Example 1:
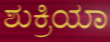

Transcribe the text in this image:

ಶುಕ್ರಿಯಾ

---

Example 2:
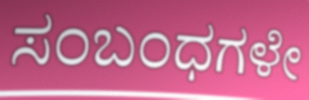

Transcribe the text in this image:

ಸಂಬಂಧಗಳೇ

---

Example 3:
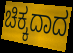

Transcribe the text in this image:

ಚಿಕ್ಕದಾದ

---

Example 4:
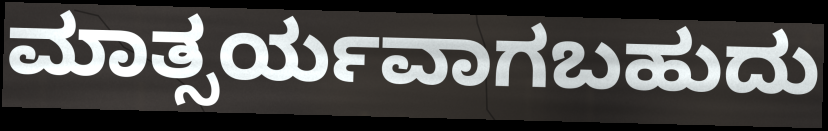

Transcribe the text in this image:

ಮಾತ್ಸರ್ಯವಾಗಬಹುದು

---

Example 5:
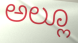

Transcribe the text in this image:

ಅಲ್ಲೂ